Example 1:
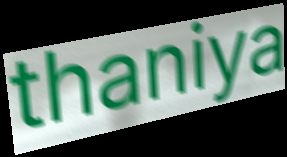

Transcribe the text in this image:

thaniya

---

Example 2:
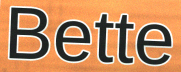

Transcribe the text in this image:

Bette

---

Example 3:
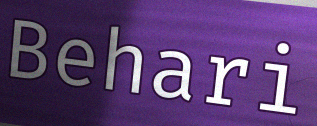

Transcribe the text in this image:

Behari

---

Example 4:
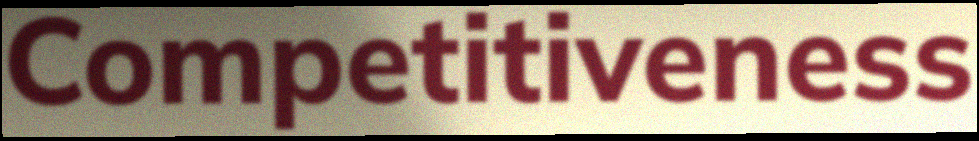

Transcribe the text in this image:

Competitiveness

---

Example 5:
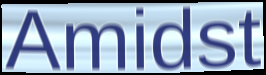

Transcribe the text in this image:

Amidst